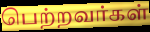
பெற்றவர்கள்